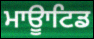
ਮਾਊਾਟਿਡ